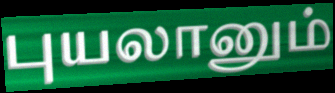
புயலானும்